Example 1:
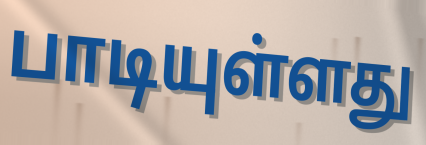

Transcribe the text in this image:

பாடியுள்ளது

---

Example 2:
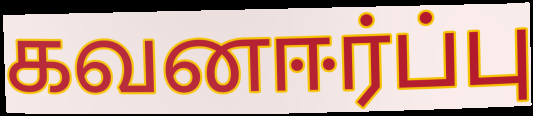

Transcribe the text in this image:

கவனஈர்ப்பு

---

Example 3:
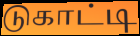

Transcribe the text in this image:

டுகாட்டி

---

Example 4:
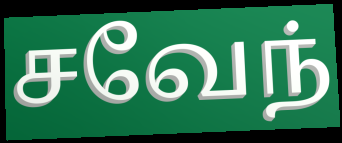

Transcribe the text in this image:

சவேந்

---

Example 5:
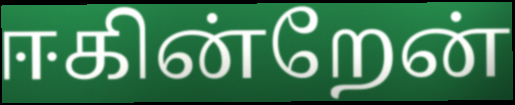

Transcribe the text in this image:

ஈகின்றேன்